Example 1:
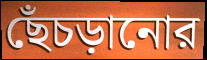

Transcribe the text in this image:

ছেঁচড়ানোর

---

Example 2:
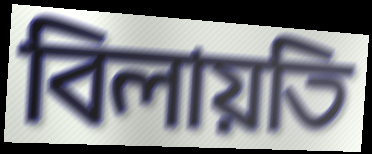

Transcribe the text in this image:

বিলায়তি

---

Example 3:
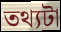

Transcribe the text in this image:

তথ্যটা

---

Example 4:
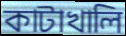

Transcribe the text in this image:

কাটাখালি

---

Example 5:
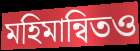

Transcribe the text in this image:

মহিমান্বিতও